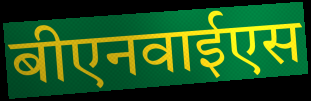
बीएनवाईएस